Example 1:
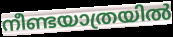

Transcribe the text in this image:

നീണ്ടയാത്രയിൽ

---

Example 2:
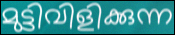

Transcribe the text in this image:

മുട്ടിവിളിക്കുന്ന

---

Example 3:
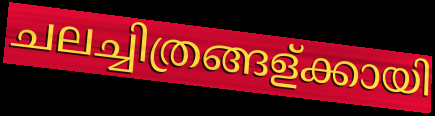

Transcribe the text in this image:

ചലച്ചിത്രങ്ങള്ക്കായി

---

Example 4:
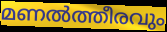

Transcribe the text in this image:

മണൽത്തീരവും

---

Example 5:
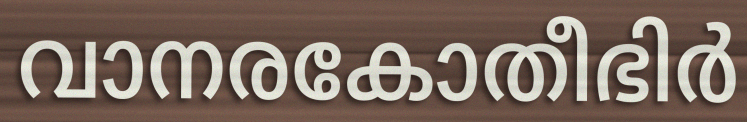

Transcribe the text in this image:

വാനരകോതീഭിർ